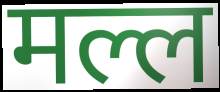
मल्ल